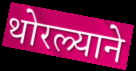
थोरल्याने